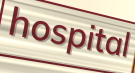
hospital